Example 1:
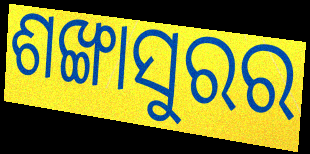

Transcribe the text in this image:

ଶଙ୍ଖାସୁରର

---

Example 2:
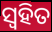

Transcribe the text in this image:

ସ୍ୱହିତ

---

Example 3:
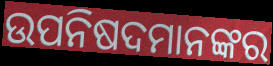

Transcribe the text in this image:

ଉପନିଷଦମାନଙ୍କର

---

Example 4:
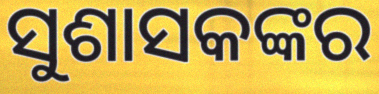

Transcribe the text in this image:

ସୁଶାସକଙ୍କର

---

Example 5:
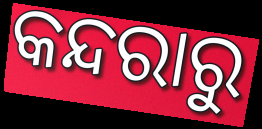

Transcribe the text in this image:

କନ୍ଦରାରୁ